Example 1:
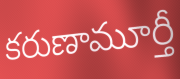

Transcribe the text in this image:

కరుణామూర్తీ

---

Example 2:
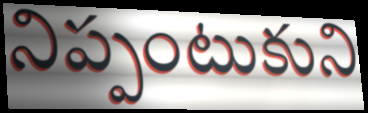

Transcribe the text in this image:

నిప్పంటుకుని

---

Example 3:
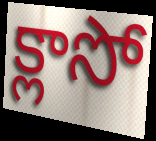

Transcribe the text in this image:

క్లాసో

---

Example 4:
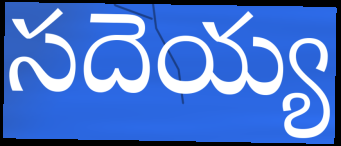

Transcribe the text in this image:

సదెయ్య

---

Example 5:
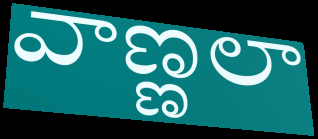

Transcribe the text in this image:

వాణ్ణలా